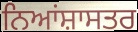
ਨਿਆਂਸ਼ਾਸਤਰ